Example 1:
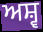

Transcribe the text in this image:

ਅਸ਼੍ਵ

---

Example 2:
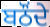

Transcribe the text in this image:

ਬਠੌਂਦੇ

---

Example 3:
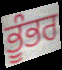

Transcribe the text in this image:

ਭੂੰਭਰ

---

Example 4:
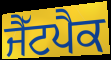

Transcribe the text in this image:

ਜੈੱਟਪੈਕ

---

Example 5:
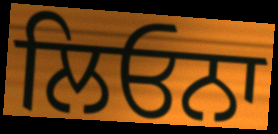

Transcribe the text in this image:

ਲਿਓਨਾ